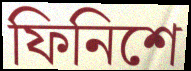
ফিনিশে